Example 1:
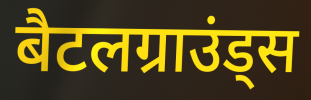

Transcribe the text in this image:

बैटलग्राउंड्स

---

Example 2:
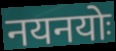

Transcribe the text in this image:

नयनयोः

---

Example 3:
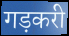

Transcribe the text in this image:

गड़करी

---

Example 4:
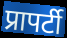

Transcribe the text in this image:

प्रापर्टी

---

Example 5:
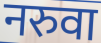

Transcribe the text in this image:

नरुवा